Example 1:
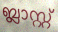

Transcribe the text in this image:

ബ്ലാസ്റ്റ്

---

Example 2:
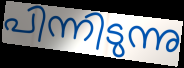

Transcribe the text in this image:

പിന്നിടുന്നു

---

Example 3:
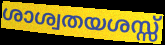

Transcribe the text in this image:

ശാശ്വതയശസ്സ്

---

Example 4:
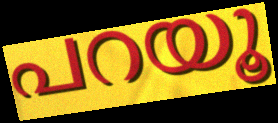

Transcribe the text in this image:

പറയൂ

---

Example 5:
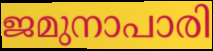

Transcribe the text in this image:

ജമുനാപാരി